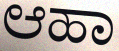
ಆಹಾ